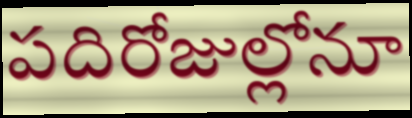
పదిరోజుల్లోనూ